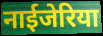
नाईजेरिया